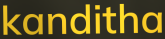
kanditha